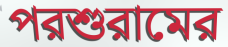
পরশুরামের